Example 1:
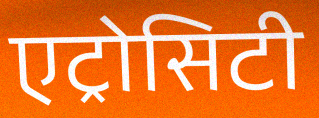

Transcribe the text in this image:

एट्रोसिटी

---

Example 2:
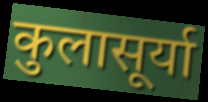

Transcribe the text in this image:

कुलासूर्या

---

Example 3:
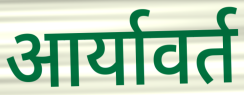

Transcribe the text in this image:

आर्यावर्त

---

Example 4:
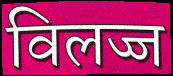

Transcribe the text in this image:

विलज्ज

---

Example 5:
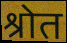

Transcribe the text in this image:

श्रोत